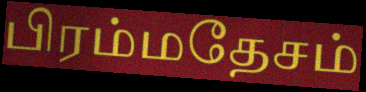
பிரம்மதேசம்